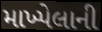
માખ્પેલાની